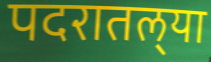
पदरातल्या